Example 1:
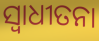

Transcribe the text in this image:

ସ୍ବାଧୀତନା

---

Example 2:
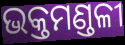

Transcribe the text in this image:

ଭକ୍ତମଣ୍ଡଳୀ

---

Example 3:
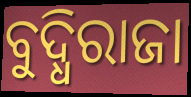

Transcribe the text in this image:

ବୁଦ୍ଧିରାଜା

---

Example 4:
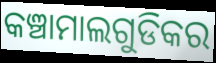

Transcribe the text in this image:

କଞ୍ଚାମାଲଗୁଡିକର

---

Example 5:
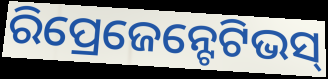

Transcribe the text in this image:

ରିପ୍ରେଜେନ୍ଟେଟିଭସ୍